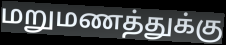
மறுமணத்துக்கு